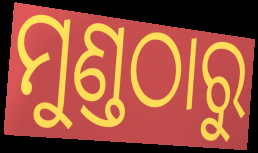
ମୁଣ୍ଡଠାରୁ